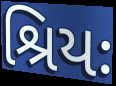
શ્રિયઃ